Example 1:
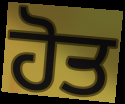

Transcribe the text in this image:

ਹੋਤ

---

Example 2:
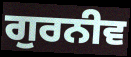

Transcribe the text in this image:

ਗੁਰਨੀਵ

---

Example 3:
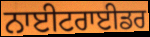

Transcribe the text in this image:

ਨਾਈਟਰਾਈਡਰ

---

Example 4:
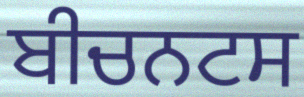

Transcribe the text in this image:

ਬੀਚਨਟਸ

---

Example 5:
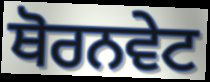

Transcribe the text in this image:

ਥੋਰਨਵੇਟ